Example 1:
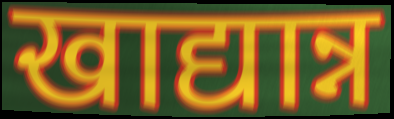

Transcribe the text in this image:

खाद्यान्न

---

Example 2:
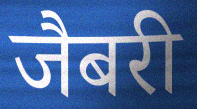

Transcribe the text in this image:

जैबरी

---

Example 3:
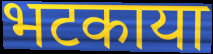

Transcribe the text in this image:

भटकाया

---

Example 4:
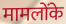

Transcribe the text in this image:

मामलोंके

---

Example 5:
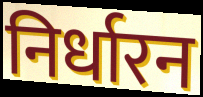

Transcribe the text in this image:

निर्धारन